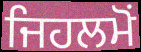
ਜਿਹਲਮੋਂ